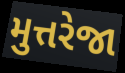
મુત્તરેજા